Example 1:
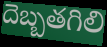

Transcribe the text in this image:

దెబ్బతగిలి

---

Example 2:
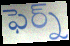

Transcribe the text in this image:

ఫెర్న్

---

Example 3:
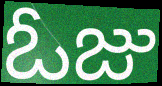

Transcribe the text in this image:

ఓజు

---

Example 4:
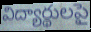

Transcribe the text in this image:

విద్యార్థులపై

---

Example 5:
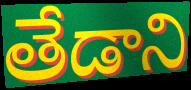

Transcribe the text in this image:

తేడాని